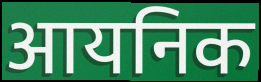
आयनिक